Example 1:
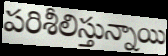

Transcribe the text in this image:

పరిశీలిస్తున్నాయి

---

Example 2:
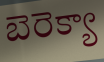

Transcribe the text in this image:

బెరెక్యా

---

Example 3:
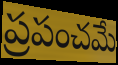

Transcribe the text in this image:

ప్రపంచమే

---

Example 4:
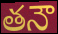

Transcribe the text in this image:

తనౌ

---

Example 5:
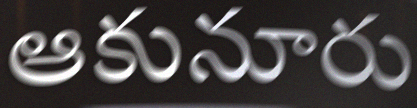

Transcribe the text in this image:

ఆకునూరు